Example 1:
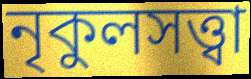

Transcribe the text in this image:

নৃকুলসত্ত্বা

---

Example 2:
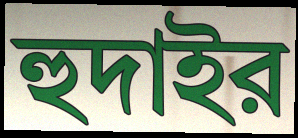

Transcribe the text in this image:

হুদাইর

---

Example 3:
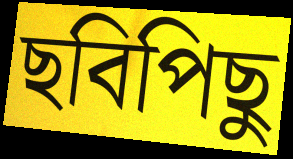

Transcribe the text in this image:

ছবিপিছু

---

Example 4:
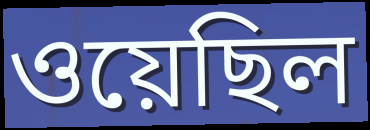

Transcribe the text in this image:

ওয়েছিল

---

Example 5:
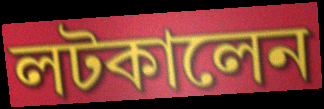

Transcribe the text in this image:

লটকালেন